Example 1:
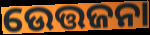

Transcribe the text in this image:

ଉେତ୍ତଜନା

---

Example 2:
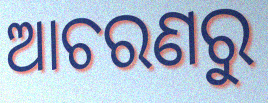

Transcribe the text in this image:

ଆଚରଣରୁ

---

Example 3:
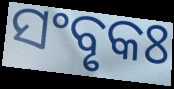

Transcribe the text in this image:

ସଂବୃକଃ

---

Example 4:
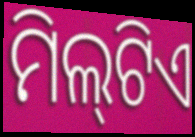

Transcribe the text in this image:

ମିଲ୍‌ଟିଏ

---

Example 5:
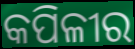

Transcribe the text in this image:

କପିଳୀର